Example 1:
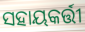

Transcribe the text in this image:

ସହାୟକର୍ତ୍ତୀ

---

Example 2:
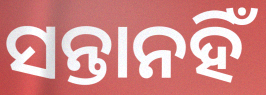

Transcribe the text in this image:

ସନ୍ତାନହିଁ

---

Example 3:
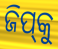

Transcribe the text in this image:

ଜିପ୍‍କୁ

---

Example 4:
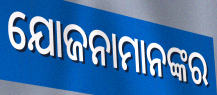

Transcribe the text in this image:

ଯୋଜନାମାନଙ୍କର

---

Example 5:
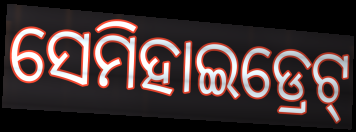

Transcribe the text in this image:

ସେମିହାଇଡ୍ରେଟ୍